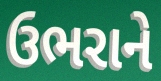
ઉભરાને